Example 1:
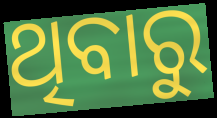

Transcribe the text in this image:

ଥିବାରୁ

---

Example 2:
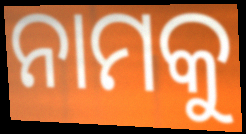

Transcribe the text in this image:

ନାମକୁ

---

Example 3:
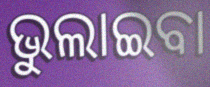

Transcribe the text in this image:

ଭୁଲାଇବା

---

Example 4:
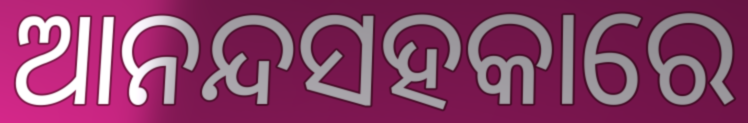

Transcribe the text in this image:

ଆନନ୍ଦସହକାରେ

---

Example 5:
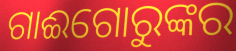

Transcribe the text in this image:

ଗାଈଗୋରୁଙ୍କର